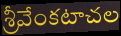
శ్రీవేంకటాచల